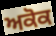
ਅਕੋਕ